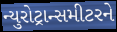
ન્યુરોટ્રાન્સમીટરને